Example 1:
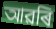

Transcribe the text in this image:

আৱৰি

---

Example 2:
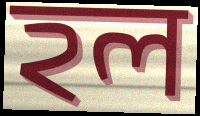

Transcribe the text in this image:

হল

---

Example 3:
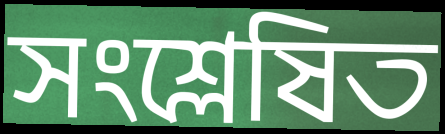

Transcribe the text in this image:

সংশ্লেষিত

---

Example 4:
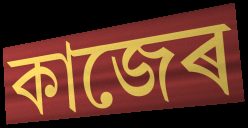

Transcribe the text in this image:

কাজেৰ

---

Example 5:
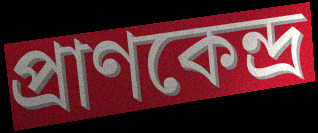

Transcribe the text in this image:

প্ৰাণকেন্দ্ৰ